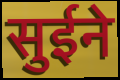
सुईने